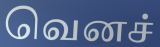
வெனச்